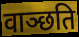
वाञ्छति